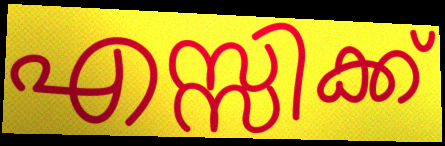
എസ്സിക്ക്